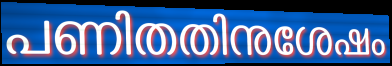
പണിതതിനുശേഷം